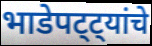
भाडेपट्ट्यांचे